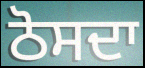
ਠੋਸਦਾ